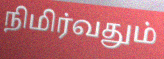
நிமிர்வதும்